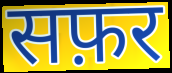
सफ़र